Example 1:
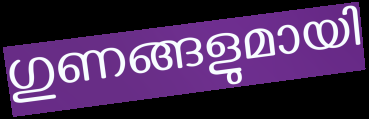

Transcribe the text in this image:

ഗുണങ്ങളുമായി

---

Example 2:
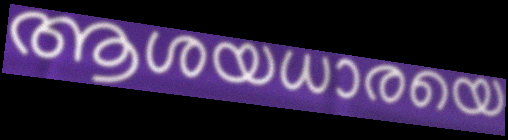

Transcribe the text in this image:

ആശയധാരയെ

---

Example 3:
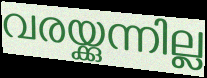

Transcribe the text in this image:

വരയ്ക്കുന്നില്ല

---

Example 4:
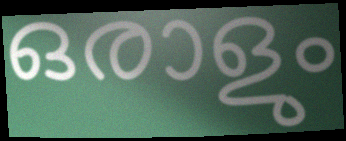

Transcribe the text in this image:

ഒരാളും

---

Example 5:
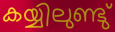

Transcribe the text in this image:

കയ്യിലുണ്ടു്